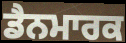
ਡੈਨਮਾਰਕ